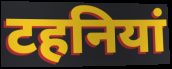
टहनियां